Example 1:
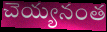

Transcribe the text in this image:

చెయ్యనంత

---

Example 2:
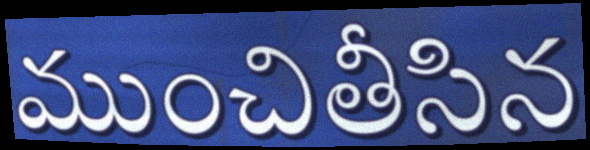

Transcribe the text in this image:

ముంచితీసిన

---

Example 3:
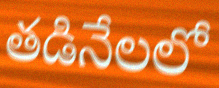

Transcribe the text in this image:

తడినేలలో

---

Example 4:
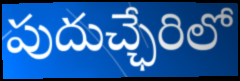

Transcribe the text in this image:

పుదుచ్ఛేరిలో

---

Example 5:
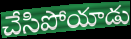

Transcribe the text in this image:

చేసిపోయాడు